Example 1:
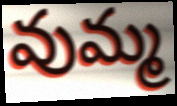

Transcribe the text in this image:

వుమ్మ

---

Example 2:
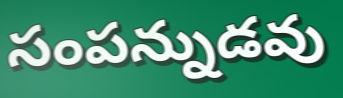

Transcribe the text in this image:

సంపన్నుడవు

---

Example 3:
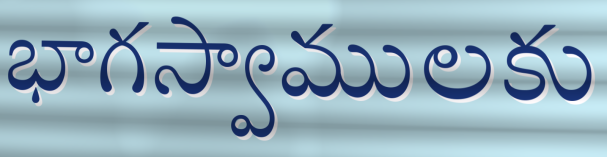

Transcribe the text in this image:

భాగస్వాములకు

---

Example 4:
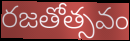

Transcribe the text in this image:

రజతోత్సవం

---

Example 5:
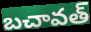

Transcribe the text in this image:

బచావత్